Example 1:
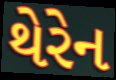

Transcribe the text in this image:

થેરેન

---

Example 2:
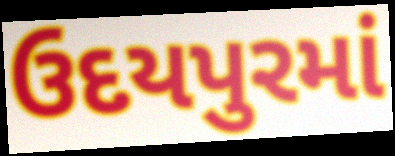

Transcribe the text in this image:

ઉદયપુરમાં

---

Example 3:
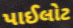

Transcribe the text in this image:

પાઈલોટ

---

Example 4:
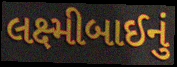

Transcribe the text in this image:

લક્ષ્મીબાઈનું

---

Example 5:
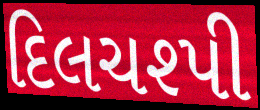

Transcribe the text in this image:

દિલચશ્પી